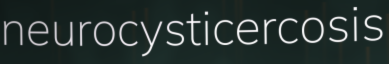
neurocysticercosis